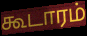
கூடாரம்